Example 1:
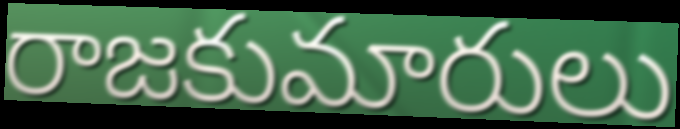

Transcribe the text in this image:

రాజకుమారులు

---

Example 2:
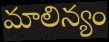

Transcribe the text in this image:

మాలిన్యం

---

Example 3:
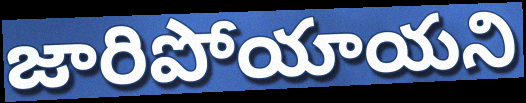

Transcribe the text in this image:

జారిపోయాయని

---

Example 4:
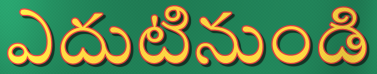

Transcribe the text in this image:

ఎదుటినుండి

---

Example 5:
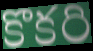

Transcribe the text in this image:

కొకరి